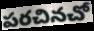
పరచినచో